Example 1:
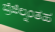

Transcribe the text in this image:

ಬ್ರೆಜಿಲ್ನಂತಹ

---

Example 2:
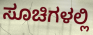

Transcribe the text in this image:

ಸೂಚಿಗಳಲ್ಲಿ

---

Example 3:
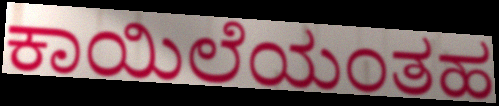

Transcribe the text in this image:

ಕಾಯಿಲೆಯಂತಹ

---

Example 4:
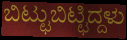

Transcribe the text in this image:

ಬಿಟ್ಟುಬಿಟ್ಟಿದ್ದಳು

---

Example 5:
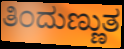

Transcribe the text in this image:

ತಿಂದುಣ್ಣುತ